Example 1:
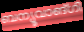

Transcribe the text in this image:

ബന്യൂവാങ്ഗി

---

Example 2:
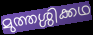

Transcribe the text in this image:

മുത്തശ്ശിക്കഥ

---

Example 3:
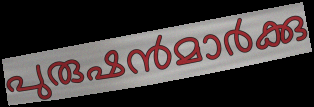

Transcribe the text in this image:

പുരുഷൻമാർക്കു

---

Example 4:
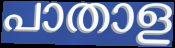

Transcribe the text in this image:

പാതാള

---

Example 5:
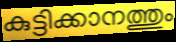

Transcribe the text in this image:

കുട്ടിക്കാനത്തും